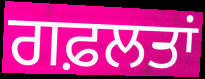
ਗਫ਼ਲਤਾਂ